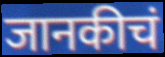
जानकीचं